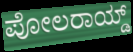
ಪೋಲರಾಯ್ಡ್